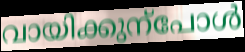
വായിക്കുന്പോൾ